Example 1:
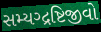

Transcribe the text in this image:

સમ્યગ્દ્રષ્ટિજીવો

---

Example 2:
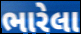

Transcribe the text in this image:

ભારેલા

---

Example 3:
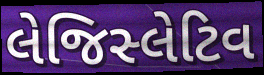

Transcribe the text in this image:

લેજિસ્લેટિવ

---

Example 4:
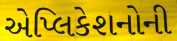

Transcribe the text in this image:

એપ્લિકેશનોની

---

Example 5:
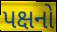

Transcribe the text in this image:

પક્ષનો